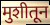
मुशीतून